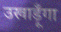
उखाड़ूँगा